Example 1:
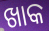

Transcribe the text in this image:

ଖାକ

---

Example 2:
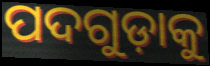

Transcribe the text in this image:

ପଦଗୁଡ଼ାକୁ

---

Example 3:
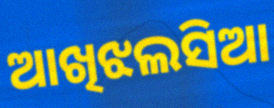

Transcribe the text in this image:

ଆଖିଝଲସିଆ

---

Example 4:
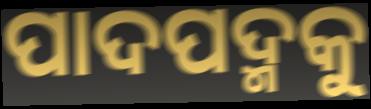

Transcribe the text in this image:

ପାଦପଦ୍ମକୁ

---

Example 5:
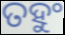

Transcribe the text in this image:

ତହୁଂ